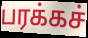
பரக்கச்